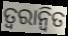
ତ୍ୱରାନ୍ୱିତ